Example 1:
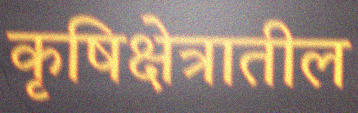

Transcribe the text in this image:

कृषिक्षेत्रातील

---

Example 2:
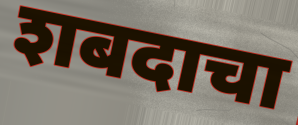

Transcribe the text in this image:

शबदाचा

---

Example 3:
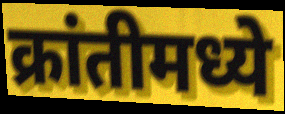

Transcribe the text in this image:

क्रांतीमध्ये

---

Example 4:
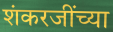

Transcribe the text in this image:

शंकरजींच्या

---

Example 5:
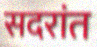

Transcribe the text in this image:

सदरांत